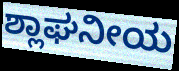
ಶ್ಲಾಘನೀಯ